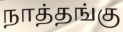
நாத்தங்கு